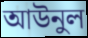
আউনুল